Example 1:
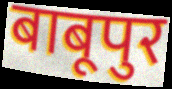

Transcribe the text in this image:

बाबूपुर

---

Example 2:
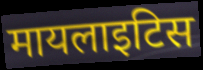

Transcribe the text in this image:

मायलाइटिस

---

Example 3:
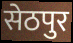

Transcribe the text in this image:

सेठपुर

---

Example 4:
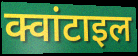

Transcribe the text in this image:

क्वांटाइल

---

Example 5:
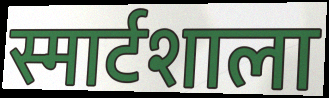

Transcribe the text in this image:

स्मार्टशाला